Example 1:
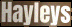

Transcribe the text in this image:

Hayleys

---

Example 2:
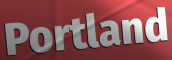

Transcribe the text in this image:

Portland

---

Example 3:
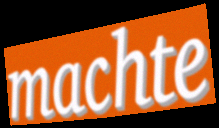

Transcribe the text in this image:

machte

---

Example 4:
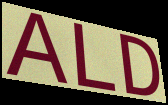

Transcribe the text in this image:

ALD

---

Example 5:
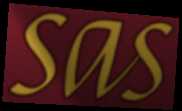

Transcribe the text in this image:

sas